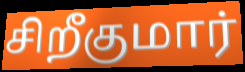
சிறீகுமார்